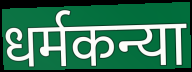
धर्मकन्या